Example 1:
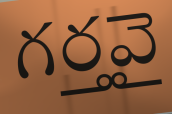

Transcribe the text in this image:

గర్తవై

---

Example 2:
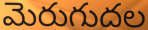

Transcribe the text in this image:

మెరుగుదల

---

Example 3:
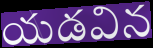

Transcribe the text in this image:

యడవిన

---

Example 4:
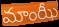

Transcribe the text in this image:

మాంఝీ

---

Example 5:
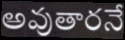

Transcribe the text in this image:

అవుతారనే